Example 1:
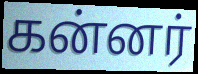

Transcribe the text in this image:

கன்னர்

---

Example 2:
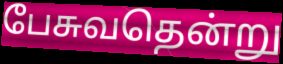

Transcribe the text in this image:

பேசுவதென்று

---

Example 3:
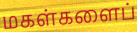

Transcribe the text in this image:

மகள்களைப்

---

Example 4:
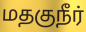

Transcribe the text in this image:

மதகுநீர்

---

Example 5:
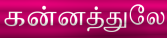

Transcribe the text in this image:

கன்னத்துலே